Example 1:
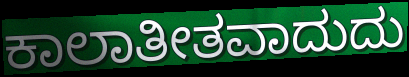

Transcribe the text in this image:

ಕಾಲಾತೀತವಾದುದು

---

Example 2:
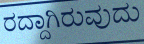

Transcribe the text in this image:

ರದ್ದಾಗಿರುವುದು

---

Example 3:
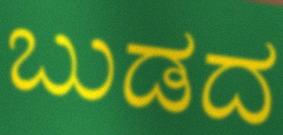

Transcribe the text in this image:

ಬುಡದ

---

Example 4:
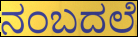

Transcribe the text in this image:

ನಂಬದಲೆ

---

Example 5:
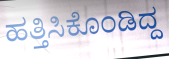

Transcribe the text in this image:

ಹತ್ತಿಸಿಕೊಂಡಿದ್ದ